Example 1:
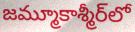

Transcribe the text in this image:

జమ్మూకాశ్మీర్‌లో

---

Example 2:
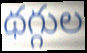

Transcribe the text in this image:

థగ్గుల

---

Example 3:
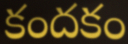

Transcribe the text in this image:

కందకం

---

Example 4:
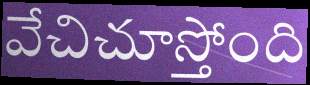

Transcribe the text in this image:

వేచిచూస్తోంది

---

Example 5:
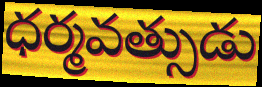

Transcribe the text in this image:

ధర్మవత్సుడు